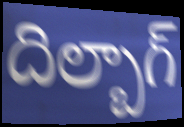
దిల్బాగ్